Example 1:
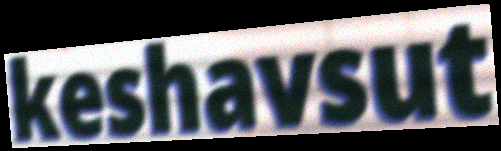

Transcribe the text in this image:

keshavsut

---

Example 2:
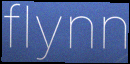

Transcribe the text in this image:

flynn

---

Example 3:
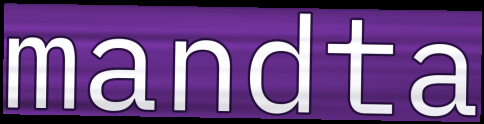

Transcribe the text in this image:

mandta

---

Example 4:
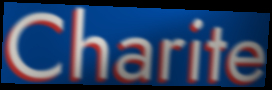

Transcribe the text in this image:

Charite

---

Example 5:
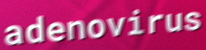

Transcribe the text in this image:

adenovirus